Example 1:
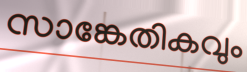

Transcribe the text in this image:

സാങ്കേതികവും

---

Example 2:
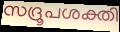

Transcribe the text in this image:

സദ്രൂപശക്തി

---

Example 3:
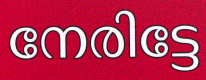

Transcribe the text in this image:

നേരിട്ടേ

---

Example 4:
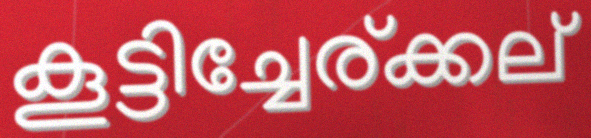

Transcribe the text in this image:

കൂട്ടിച്ചേര്ക്കല്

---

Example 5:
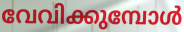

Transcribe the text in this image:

വേവിക്കുമ്പോൾ